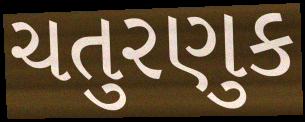
ચતુરણુક